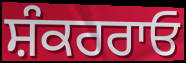
ਸ਼ੰਕਰਰਾਓ